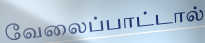
வேலைப்பாட்டால்